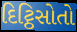
દિટ્ઠિસોતો